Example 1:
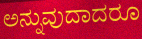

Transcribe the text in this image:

ಅನ್ನುವುದಾದರೂ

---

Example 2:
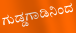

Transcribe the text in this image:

ಗುಡ್ಡಗಾಡಿನಿಂದ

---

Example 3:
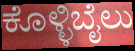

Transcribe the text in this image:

ಕೊಳ್ಳಿಬೈಲು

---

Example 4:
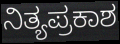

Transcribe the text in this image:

ನಿತ್ಯಪ್ರಕಾಶ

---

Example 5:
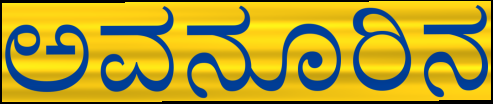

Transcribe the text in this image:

ಅವನೂರಿನ